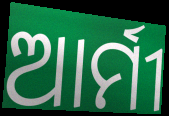
ଆର୍ମୀ